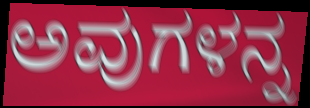
ಅವುಗಳನ್ನ